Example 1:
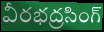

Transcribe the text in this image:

వీరభద్రసింగ్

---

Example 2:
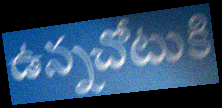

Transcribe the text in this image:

ఉన్నచోటుకి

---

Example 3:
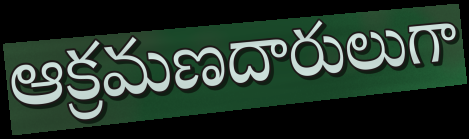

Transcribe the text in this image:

ఆక్రమణదారులుగా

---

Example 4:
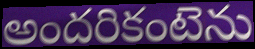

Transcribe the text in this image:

అందరికంటెను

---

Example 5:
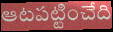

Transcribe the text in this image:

ఆటపట్టించేది